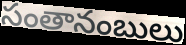
సంతానంబులు